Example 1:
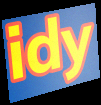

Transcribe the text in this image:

idy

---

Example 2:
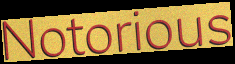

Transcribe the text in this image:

Notorious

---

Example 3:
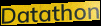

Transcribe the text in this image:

Datathon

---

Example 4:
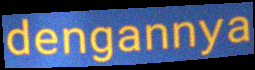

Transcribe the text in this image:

dengannya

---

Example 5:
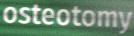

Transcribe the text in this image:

osteotomy